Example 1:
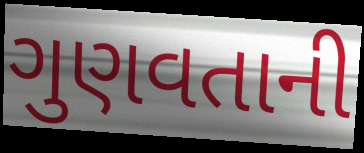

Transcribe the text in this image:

ગુણવતાની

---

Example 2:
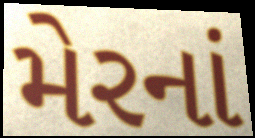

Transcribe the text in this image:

મેરનાં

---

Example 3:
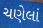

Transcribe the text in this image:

ચણેલાં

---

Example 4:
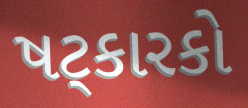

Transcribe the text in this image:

ષટ્કારકો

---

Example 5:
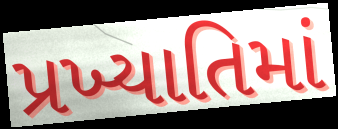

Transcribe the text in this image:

પ્રખ્યાતિમાં